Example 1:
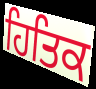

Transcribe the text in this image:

ਹਿਤਿਕ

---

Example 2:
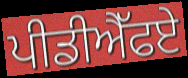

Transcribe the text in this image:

ਪੀਡੀਐੱਫਏ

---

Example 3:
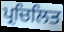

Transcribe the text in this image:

ਪ੍ਰਚਿਲਿਤ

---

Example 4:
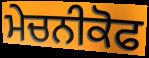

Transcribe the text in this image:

ਮੇਚਨੀਕੋਫ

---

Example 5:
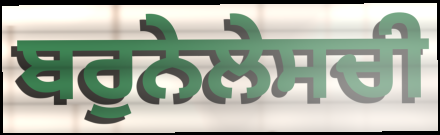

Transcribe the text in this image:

ਬਰੁਨੇਲੇਸਚੀ